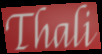
Thali